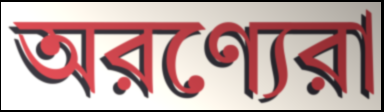
অরণ্যেরা